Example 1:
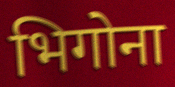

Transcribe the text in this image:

भिगोना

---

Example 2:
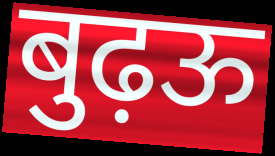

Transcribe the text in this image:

बुढ़ऊ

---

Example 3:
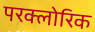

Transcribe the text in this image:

परक्लोरिक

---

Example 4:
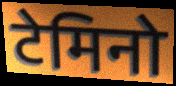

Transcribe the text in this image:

टेमिनो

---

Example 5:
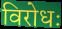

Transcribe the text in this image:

विरोधः